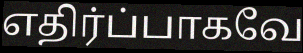
எதிர்ப்பாகவே